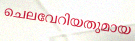
ചെലവേറിയതുമായ